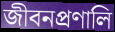
জীবনপ্রণালি